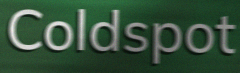
Coldspot